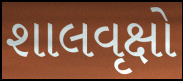
શાલવૃક્ષો